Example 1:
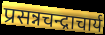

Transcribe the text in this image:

प्रसन्नचन्द्राचार्य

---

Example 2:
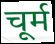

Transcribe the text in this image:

चूर्म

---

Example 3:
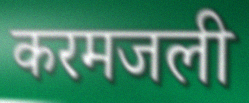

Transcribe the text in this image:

करमजली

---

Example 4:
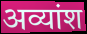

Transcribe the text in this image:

अव्यांश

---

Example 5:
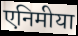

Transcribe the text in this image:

एनिमीया